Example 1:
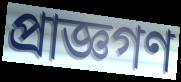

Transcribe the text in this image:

প্রাজ্ঞগণ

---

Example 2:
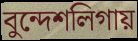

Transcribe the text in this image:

বুন্দেশলিগায়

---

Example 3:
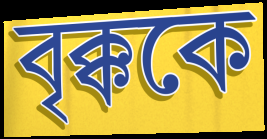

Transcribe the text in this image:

বৃক্ককে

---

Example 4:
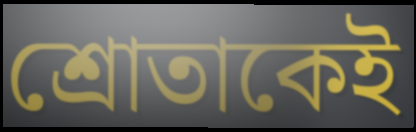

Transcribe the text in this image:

শ্রোতাকেই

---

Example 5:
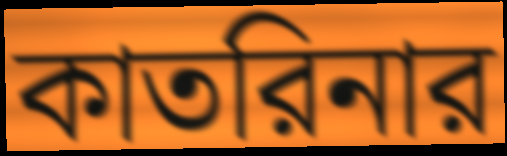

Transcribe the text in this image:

কাতরিনার